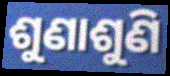
ଶୁଣାଶୁଣି